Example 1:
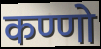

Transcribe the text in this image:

कण्णो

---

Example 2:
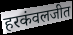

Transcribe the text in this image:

हरकंवलजीत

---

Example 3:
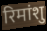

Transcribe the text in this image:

रिमांशु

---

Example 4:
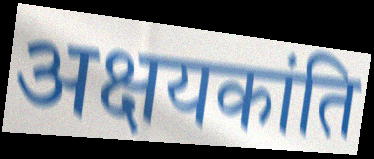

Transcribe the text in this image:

अक्षयकांति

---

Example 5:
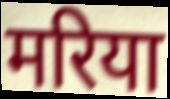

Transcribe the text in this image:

मरिया